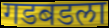
गडबडला